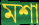
মশা